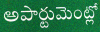
అపార్టుమెంట్లో